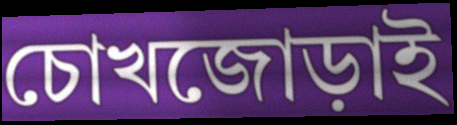
চোখজোড়াই